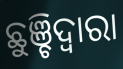
ଛୁଞ୍ଚିଦ୍ଵାରା